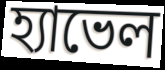
হ্যাভেল